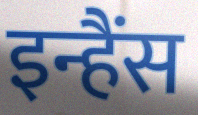
इन्हैंस